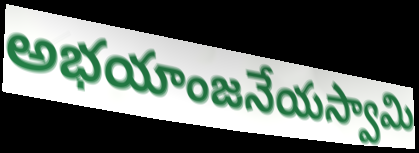
అభయాంజనేయస్వామి